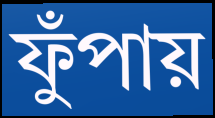
ফুঁপায়